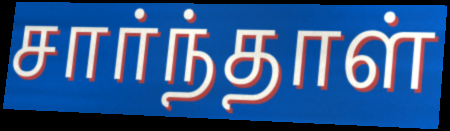
சார்ந்தாள்